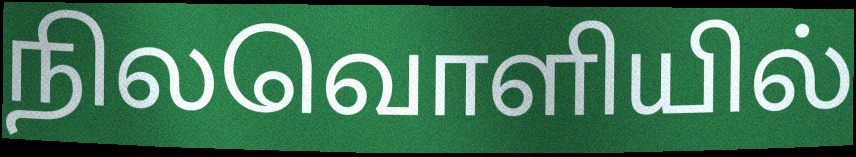
நிலவொளியில்